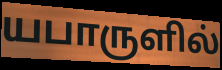
யபாருளில்